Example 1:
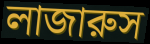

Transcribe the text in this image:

লাজারুস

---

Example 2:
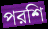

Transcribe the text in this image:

পরশি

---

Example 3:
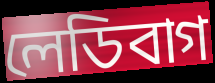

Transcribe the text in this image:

লেডিবাগ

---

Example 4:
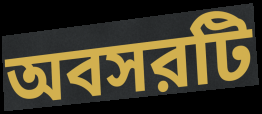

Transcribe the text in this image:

অবসরটি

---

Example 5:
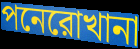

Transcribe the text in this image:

পনেরোখানা